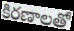
కిరణాలతో